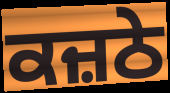
ਕਜ਼ਠੇ